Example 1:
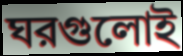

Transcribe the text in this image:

ঘরগুলোই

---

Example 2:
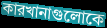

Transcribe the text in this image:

কারখানাগুলোকে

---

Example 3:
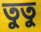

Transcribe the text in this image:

তুতু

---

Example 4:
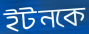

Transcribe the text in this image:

ইটনকে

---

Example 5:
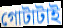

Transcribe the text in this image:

গোটাটাই